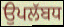
ਉਪਲੱਬਧ